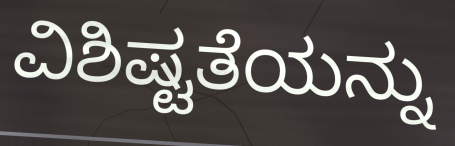
ವಿಶಿಷ್ಟತೆಯನ್ನು